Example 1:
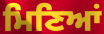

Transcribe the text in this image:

ਮਿਣਿਆਂ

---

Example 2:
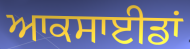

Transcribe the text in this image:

ਆਕਸਾਈਡਾਂ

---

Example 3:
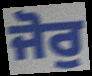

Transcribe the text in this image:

ਜੋਰੁ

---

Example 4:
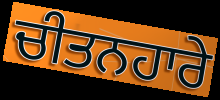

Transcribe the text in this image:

ਚੀਤਨਹਾਰੇ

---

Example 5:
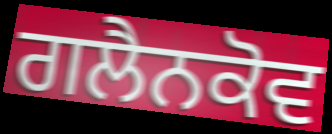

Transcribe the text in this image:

ਗਲੈਨਕੋਵ